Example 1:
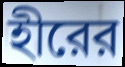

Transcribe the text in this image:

হীরের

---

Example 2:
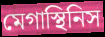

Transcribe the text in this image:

মেগাস্থিনিস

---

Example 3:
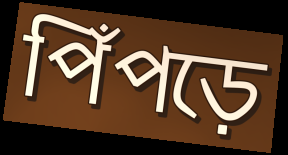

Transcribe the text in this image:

পিঁপড়ে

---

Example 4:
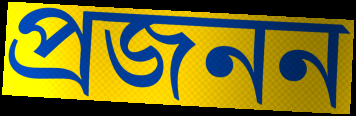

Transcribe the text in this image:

প্রজনন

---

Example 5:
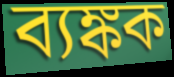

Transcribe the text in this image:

ব্যঙ্কক